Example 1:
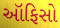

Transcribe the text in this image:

ઑફિસો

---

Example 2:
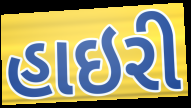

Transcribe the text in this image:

હાઇરી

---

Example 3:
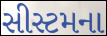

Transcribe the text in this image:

સીસ્ટમના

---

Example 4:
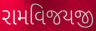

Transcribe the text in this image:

રામવિજયજી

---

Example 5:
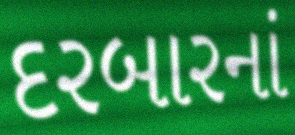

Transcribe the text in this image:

દરબારનાં